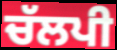
ਚੱਲਪੀ